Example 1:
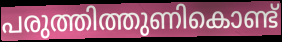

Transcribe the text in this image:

പരുത്തിത്തുണികൊണ്ട്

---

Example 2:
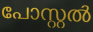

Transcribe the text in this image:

പോസ്റ്റൽ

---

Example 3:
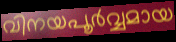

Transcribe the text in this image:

വിനയപൂർവ്വമായ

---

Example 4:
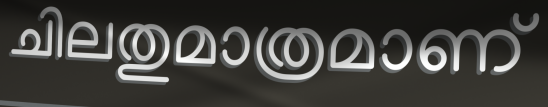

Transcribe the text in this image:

ചിലതുമാത്രമാണ്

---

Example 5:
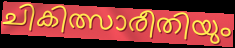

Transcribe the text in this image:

ചികിത്സാരീതിയും